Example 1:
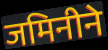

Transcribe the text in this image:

जमिनीने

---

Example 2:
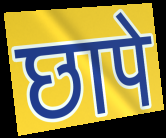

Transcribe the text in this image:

छापे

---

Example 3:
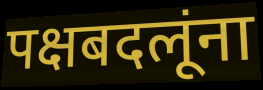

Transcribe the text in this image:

पक्षबदलूंना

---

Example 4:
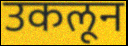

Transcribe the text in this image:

उकलून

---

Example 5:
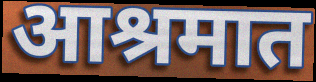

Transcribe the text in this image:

आश्रमात